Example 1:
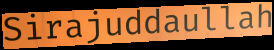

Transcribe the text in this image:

Sirajuddaullah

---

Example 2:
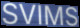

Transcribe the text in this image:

SVIMS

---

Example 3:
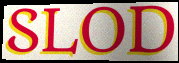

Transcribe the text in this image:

SLOD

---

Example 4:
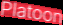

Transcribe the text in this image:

Platoon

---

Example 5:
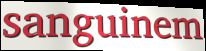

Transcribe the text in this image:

sanguinem